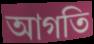
আগতি